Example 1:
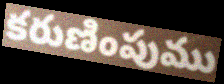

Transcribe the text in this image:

కరుణింపుము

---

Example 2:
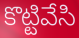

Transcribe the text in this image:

కొట్టివేసి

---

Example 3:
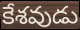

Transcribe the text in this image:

కేశవుడు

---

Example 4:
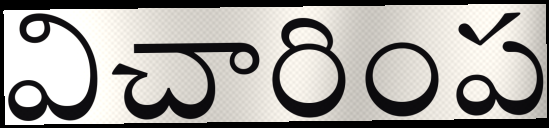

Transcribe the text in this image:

విచారింప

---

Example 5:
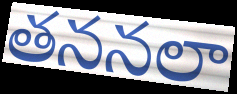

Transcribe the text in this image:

తననలా